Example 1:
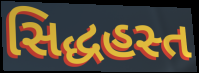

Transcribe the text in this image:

સિદ્ધહસ્ત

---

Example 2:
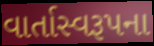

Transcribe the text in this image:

વાર્તાસ્વરૂપના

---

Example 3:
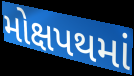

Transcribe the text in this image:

મોક્ષપથમાં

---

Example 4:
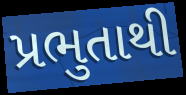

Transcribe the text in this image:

પ્રભુતાથી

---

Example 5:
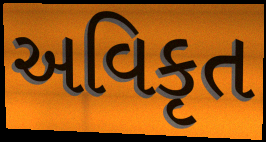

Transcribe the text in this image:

અવિકૃત